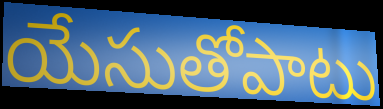
యేసుతోపాటు